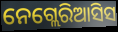
ନେଗ୍ଲେରିଆସିସ